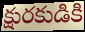
క్షురకుడికి